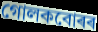
গোলকবোৰৰ